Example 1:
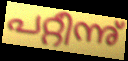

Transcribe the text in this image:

പറ്റീന്നു്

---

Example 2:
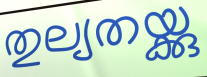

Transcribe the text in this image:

തുല്യതയ്ക്കു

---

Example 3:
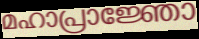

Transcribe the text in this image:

മഹാപ്രാജ്ഞോ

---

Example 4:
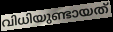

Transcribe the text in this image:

വിധിയുണ്ടായത്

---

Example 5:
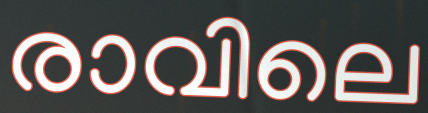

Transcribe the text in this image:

രാവിലെ